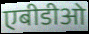
एबीडीओ